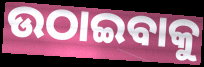
ଉଠାଇବାକୁ